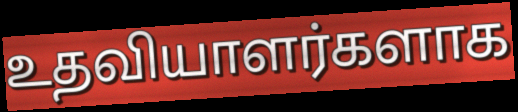
உதவியாளர்களாக